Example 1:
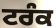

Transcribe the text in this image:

ਟਰੰਕ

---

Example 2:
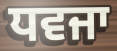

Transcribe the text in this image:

ਧਵਜਾ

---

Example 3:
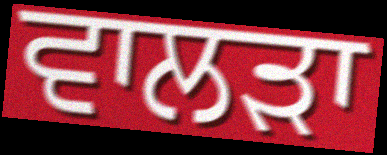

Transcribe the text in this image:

ਵਾਲੜਾ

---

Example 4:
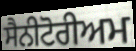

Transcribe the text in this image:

ਸੈਨੀਟੋਰੀਅਮ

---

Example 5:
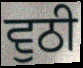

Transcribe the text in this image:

ਵੁਠੀ